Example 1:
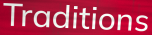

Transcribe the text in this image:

Traditions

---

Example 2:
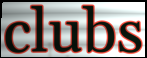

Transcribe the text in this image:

clubs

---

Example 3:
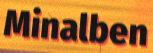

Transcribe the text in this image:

Minalben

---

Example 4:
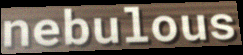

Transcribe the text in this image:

nebulous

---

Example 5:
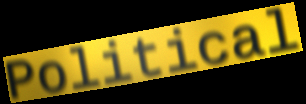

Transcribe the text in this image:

Political